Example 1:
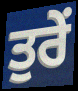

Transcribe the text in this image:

ਤੁਰੇਂ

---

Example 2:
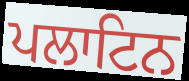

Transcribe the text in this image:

ਪਲਾਟਿਨ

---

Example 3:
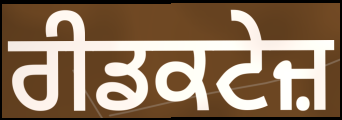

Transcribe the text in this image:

ਰੀਡਕਟੇਜ਼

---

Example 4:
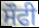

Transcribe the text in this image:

ਸੌਫੀ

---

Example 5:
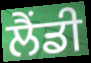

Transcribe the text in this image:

ਲੈਂਡੀ